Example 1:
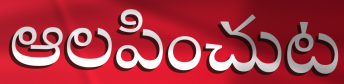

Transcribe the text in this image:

ఆలపించుట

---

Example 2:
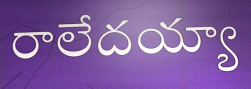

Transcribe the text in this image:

రాలేదయ్యా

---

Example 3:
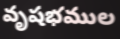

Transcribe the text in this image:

వృషభముల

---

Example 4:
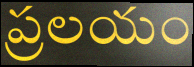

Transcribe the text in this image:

ప్రలయం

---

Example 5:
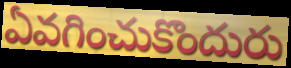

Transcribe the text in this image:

ఏవగించుకొందురు